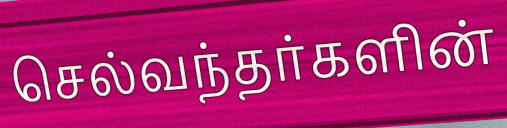
செல்வந்தர்களின்